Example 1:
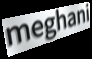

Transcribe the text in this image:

meghani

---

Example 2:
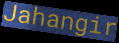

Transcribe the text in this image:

Jahangir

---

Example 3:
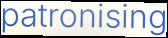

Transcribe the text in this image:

patronising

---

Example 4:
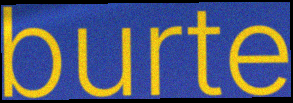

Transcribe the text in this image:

burte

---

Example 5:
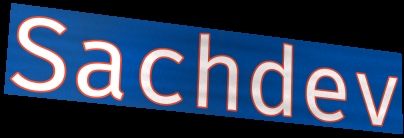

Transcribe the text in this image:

Sachdev